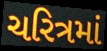
ચરિત્રમાં